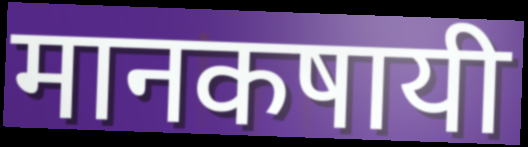
मानकषायी